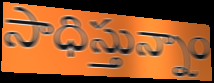
సాధిస్తున్నాం